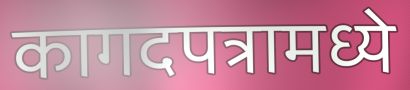
कागदपत्रामध्ये